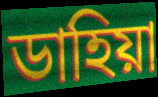
ডাহিয়া